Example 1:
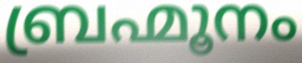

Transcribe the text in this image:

ബ്രഹ്മൂനം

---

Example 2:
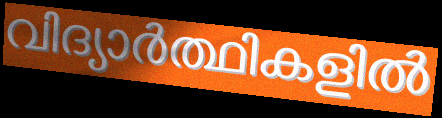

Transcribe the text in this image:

വിദ്യാർത്ഥികളിൽ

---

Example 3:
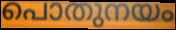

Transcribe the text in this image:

പൊതുനയം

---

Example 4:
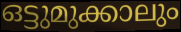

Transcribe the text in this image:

ഒട്ടുമുക്കാലും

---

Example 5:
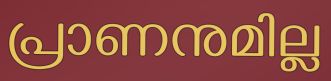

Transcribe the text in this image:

പ്രാണനുമില്ല